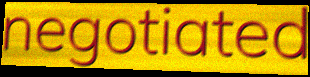
negotiated